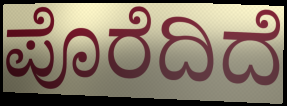
ಪೊರೆದಿದೆ